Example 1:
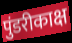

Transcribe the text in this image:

पुंडरीकाक्ष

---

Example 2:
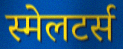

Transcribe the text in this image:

स्मेलटर्स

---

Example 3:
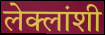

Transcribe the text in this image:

लेक्लांशी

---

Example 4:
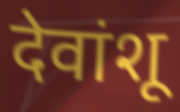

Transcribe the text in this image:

देवांशू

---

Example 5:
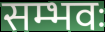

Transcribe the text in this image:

सम्भवः